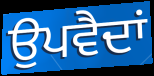
ਉਪਵੈਦਾਂ